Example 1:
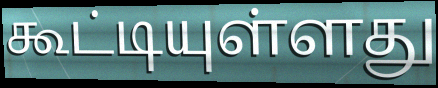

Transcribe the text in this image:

கூட்டியுள்ளது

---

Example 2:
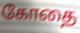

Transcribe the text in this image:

கோதை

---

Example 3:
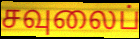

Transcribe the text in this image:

சவுலைப்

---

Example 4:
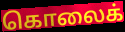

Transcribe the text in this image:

கொலைக்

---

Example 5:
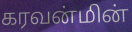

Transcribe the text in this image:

கரவன்மின்